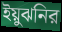
ইয়ুঝনির